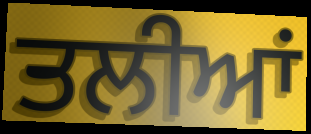
ਤਲੀਆਂ